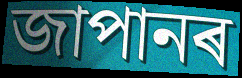
জাপানৰ